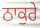
ਠਾਕੁਰੇ